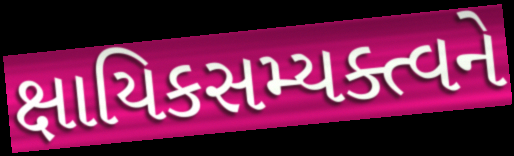
ક્ષાયિકસમ્યક્ત્વને